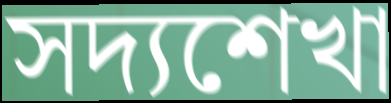
সদ্যশেখা